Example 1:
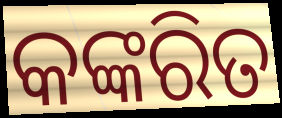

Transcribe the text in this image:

କଙ୍କରିତ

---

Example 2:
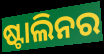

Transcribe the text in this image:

ଷ୍ଟାଲିନର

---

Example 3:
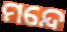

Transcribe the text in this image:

ମନ୍ଦେ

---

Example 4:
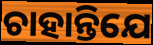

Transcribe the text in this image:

ଚାହାନ୍ତିଯେ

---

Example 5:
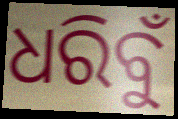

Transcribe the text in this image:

ଧରିବୁଁ